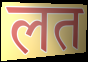
लत